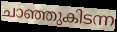
ചാഞ്ഞുകിടന്ന